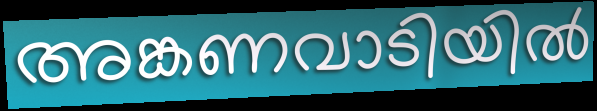
അങ്കണവാടിയിൽ